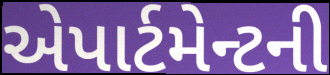
એપાર્ટમેન્ટની